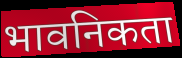
भावनिकता